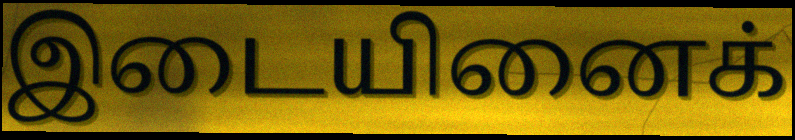
இடையினைக்